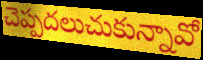
చెప్పదలుచుకున్నావో